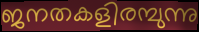
ജനതകളിരമ്പുന്നു